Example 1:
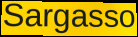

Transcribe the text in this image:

Sargasso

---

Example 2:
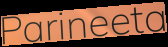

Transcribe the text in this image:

Parineeta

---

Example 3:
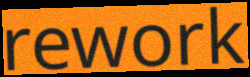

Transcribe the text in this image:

rework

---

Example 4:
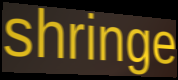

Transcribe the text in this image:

shringe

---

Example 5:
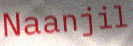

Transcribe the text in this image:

Naanjil